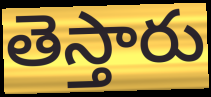
తెస్తారు